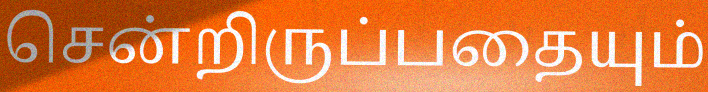
சென்றிருப்பதையும்